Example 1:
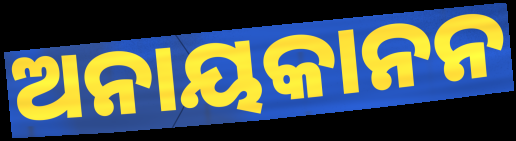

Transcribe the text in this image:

ଅନାୟକାନନ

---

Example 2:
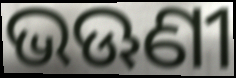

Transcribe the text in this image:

ଭଊଣୀ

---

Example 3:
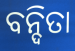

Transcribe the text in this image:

ବନ୍ଦିତା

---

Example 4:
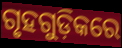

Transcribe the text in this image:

ଗୃହଗୁଡ଼ିକରେ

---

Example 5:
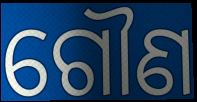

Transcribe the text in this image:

ଗୌଣ